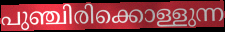
പുഞ്ചിരിക്കൊള്ളുന്ന